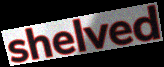
shelved